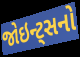
જોઇન્ટ્સનો